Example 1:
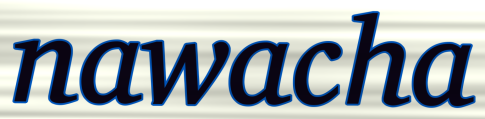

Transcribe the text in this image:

nawacha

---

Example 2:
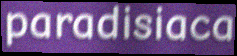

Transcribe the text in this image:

paradisiaca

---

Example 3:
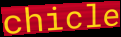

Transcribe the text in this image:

chicle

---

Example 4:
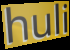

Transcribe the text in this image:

huli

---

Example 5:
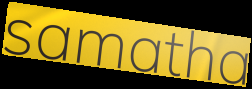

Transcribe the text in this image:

samatha